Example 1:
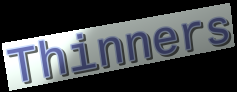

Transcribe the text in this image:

Thinners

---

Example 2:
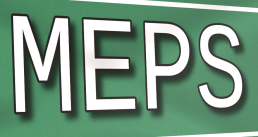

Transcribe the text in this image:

MEPS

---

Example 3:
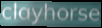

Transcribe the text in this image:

clayhorse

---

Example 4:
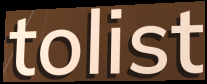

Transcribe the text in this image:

tolist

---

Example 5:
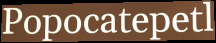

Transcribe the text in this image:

Popocatepetl